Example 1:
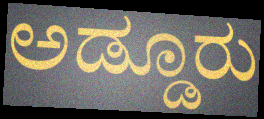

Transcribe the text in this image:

ಅಡ್ಡೂರು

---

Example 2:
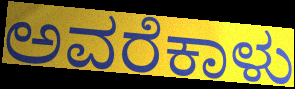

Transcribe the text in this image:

ಅವರೆಕಾಳು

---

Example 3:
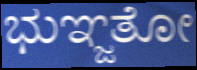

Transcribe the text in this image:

ಭುಞ್ಜತೋ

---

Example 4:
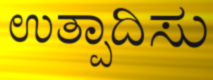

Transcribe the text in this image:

ಉತ್ಪಾದಿಸು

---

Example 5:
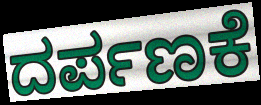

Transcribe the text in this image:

ದರ್ಪಣಕೆ